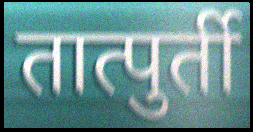
तात्पुर्ती